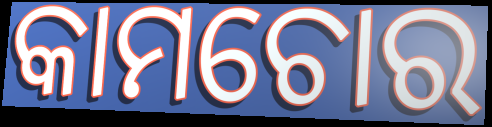
କାମଚୋର